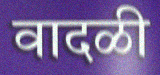
वादळी